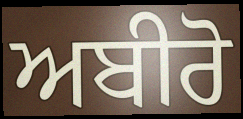
ਅਬੀਰੋ